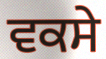
ਵਕਸੇ